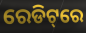
ରେଡିଟ୍‌ରେ